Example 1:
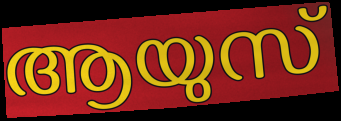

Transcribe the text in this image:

ആയുസ്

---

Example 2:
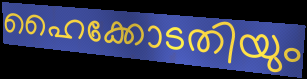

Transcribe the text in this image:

ഹൈക്കോടതിയും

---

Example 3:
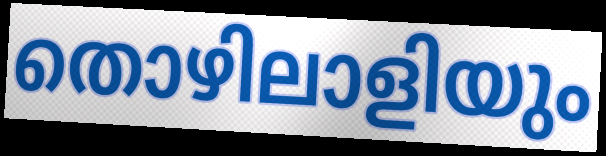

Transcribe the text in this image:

തൊഴിലാളിയും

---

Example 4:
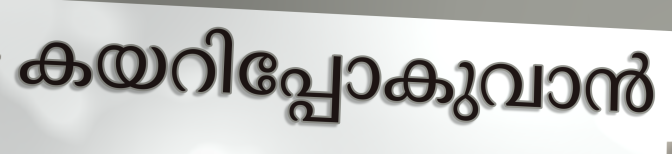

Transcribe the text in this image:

കയറിപ്പോകുവാൻ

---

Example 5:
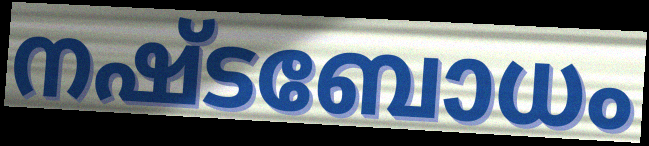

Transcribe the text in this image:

നഷ്ടബോധം